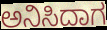
ಅನಿಸಿದಾಗ